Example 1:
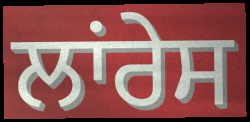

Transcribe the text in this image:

ਲਾਂਰੇਸ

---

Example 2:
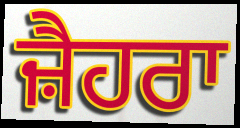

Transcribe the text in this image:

ਜ਼ੈਹਰਾ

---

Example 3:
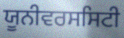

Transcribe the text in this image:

ਯੂਨੀਵਰਸਸਿਟੀ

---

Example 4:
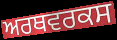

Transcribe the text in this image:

ਅਰਥਵਰਕਸ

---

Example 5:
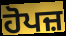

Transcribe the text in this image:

ਹੋਪਜ਼